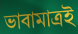
ভাবামাত্রই